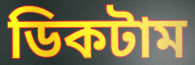
ডিকটাম